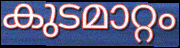
കുടമാറ്റം